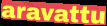
aravattu